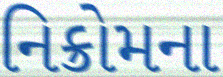
નિક્રોમના